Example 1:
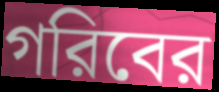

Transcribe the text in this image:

গরিবের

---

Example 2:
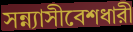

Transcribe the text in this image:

সন্ন্যাসীবেশধারী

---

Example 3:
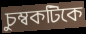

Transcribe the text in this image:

চুম্বকটিকে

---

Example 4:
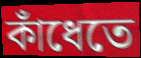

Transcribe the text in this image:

কাঁধেতে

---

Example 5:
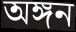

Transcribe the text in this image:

অঙ্গন